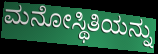
ಮನೋಸ್ಥಿತಿಯನ್ನು